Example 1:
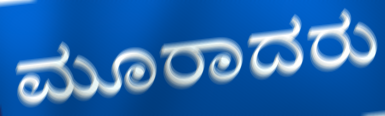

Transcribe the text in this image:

ಮೂರಾದರು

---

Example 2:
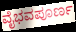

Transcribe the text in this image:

ವೈಭವಪೂರ್ಣ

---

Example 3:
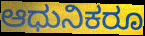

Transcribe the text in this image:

ಆಧುನಿಕರೂ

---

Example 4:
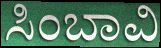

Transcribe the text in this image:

ಸಿಂಬಾವಿ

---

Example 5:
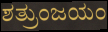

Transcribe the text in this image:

ಶತ್ರುಂಜಯಂ